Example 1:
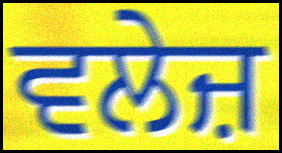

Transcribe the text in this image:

ਵਲੇਜ਼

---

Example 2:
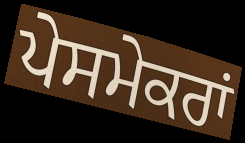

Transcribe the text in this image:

ਪੇਸਮੇਕਰਾਂ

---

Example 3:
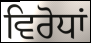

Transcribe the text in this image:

ਵਿਰੋਧਾਂ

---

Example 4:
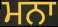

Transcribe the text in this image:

ਮਨਾ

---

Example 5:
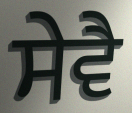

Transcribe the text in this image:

ਸੇਵੈ